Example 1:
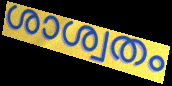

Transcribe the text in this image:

ശാശ്വതം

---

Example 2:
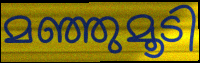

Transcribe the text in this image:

മഞ്ഞുമൂടി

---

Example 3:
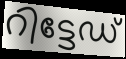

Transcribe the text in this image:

റിട്ടേഡ്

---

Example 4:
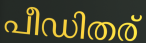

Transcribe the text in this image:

പീഡിതര്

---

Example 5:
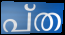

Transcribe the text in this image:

പ്ത